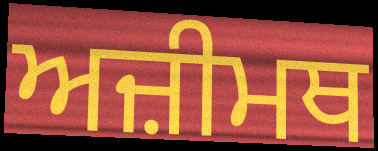
ਅਜ਼ੀਮਥ